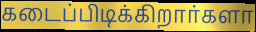
கடைப்பிடிக்கிறார்களா